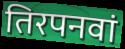
तिरपनवां